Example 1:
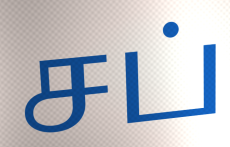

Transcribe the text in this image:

சப்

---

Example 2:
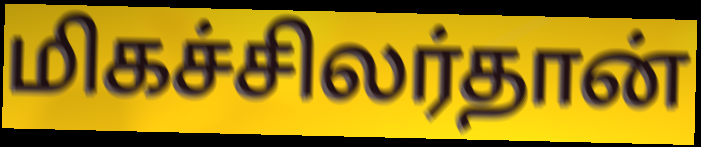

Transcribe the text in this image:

மிகச்சிலர்தான்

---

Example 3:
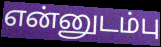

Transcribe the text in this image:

என்னுடம்பு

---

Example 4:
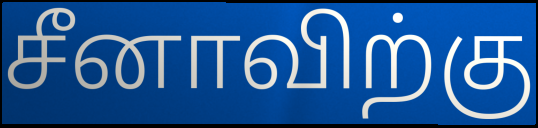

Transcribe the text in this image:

சீனாவிற்கு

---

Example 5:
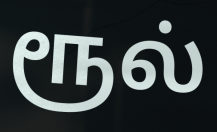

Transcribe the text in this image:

ரூல்